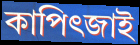
কাপিৎজাই